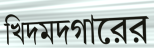
খিদমদগারের